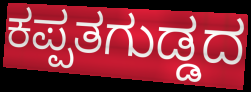
ಕಪ್ಪತಗುಡ್ಡದ